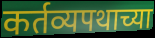
कर्तव्यपथाच्या